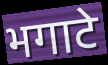
भगाटे